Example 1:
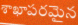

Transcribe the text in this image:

శాఖాపరమైన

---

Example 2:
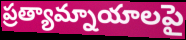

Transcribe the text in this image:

ప్రత్యామ్నాయాలపై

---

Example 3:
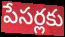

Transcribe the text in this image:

పేసర్లకు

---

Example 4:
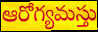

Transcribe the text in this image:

ఆరోగ్యమస్తు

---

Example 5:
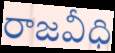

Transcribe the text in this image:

రాజవీధి